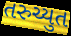
તરુચ્યુત